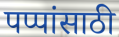
पप्पांसाठी